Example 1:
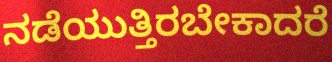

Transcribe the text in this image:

ನಡೆಯುತ್ತಿರಬೇಕಾದರೆ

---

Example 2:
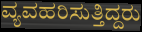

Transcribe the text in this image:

ವ್ಯವಹರಿಸುತ್ತಿದ್ದರು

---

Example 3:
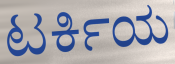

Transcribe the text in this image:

ಟರ್ಕಿಯ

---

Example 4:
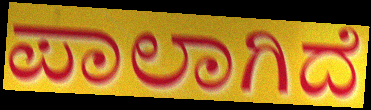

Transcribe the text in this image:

ಪಾಲಾಗಿದೆ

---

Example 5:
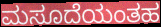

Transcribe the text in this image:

ಮಸೂದೆಯಂತಹ